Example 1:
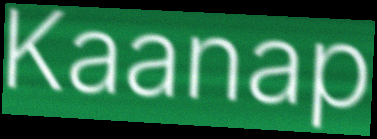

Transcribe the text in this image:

Kaanap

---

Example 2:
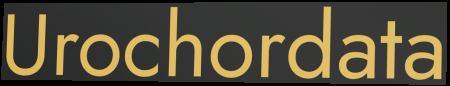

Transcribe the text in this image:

Urochordata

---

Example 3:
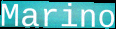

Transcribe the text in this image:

Marino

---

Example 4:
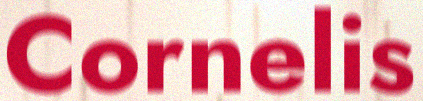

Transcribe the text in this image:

Cornelis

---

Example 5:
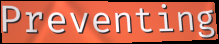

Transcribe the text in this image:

Preventing